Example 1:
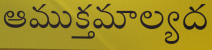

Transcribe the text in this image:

ఆముక్తమాల్యద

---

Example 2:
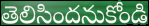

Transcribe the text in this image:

తెలిసిందనుకోండి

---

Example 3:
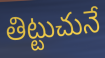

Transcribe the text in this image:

తిట్టుచునే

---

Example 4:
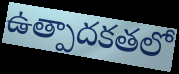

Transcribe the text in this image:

ఉత్పాదకతలో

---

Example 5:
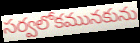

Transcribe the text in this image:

సర్వలోకమునకును